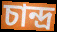
চান্দ্ৰ